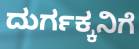
ದುರ್ಗಕ್ಕನಿಗೆ